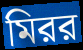
মিরর